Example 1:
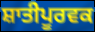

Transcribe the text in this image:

ਸ਼ਾਤੀਪੂਰਵਕ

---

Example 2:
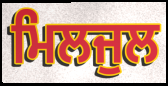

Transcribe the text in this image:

ਮਿਲਜੁਲ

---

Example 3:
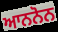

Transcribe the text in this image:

ਆਨਨੋਨ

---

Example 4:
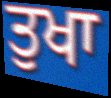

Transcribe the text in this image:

ਤੁਖਾ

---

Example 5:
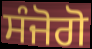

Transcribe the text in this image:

ਸੰਜੋਗੋ